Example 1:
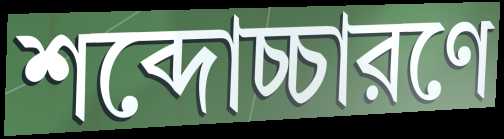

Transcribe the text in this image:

শব্দোচ্চারণে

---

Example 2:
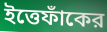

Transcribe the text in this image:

ইত্তেফাঁকের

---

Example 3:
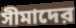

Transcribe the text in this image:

সীমাদের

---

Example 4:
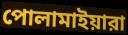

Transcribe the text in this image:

পোলামাইয়ারা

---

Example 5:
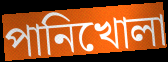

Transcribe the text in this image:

পানিখোলা